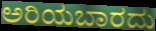
ಅರಿಯಬಾರದು